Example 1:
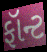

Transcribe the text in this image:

ફૉન્ટ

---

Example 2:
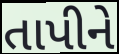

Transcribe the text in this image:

તાપીને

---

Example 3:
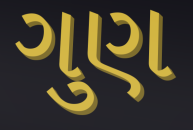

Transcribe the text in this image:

ગુણ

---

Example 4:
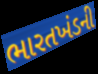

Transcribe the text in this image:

ભારતખંડની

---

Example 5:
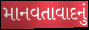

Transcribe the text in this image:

માનવતાવાદનું